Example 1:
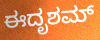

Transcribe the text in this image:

ಈದೃಶಮ್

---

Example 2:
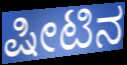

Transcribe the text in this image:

ಷೀಟಿನ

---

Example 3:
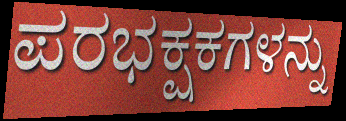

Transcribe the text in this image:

ಪರಭಕ್ಷಕಗಳನ್ನು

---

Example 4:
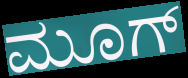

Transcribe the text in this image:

ಮೂಗ್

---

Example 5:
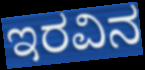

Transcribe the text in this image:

ಇರವಿನ